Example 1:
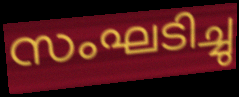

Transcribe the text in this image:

സംഘടിച്ചു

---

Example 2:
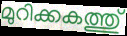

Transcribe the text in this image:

മുറിക്കകത്തു്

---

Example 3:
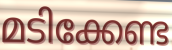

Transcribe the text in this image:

മടിക്കേണ്ട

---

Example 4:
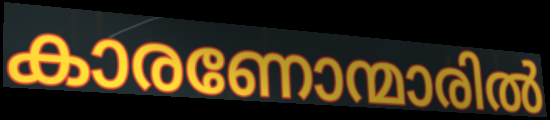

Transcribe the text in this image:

കാരണോന്മാരിൽ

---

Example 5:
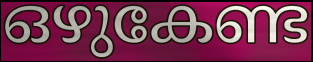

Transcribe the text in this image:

ഒഴുകേണ്ട